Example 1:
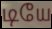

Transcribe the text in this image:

டியே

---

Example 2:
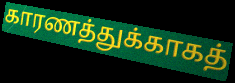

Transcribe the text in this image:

காரணத்துக்காகத்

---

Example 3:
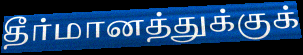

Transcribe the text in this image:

தீர்மானத்துக்குக்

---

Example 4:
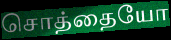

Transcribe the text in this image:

சொத்தையோ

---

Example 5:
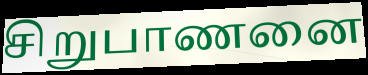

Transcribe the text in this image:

சிறுபாணனை